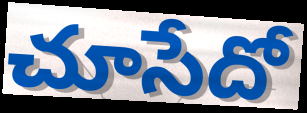
చూసేదో